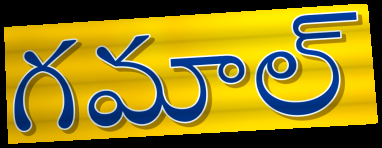
గమాల్